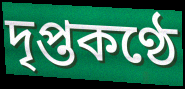
দৃপ্তকণ্ঠে